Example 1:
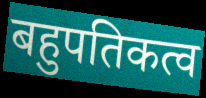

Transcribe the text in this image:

बहुपतिकत्व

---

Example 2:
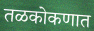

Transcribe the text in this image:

तळकोकणात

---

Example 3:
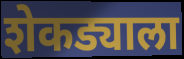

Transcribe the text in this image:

शेकड्याला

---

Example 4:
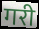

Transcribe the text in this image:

गरी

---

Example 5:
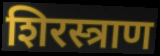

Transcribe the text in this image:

शिरस्त्राण